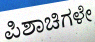
ಪಿಶಾಚಿಗಳೇ